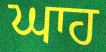
ਘਾਹ